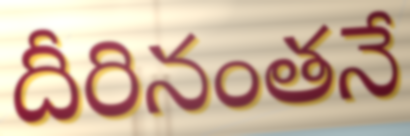
దీరినంతనే